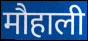
मौहाली